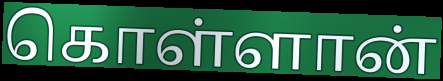
கொள்ளான்